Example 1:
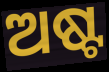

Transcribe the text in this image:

ଅଷ୍ଟ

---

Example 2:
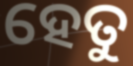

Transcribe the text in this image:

ହେତୁ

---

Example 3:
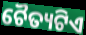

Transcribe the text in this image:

ଚୈତ୍ୟଟିଏ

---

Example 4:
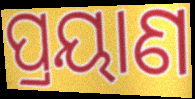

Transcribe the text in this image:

ପ୍ରୟାଣ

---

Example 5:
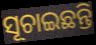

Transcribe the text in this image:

ସୂଚାଇଛନ୍ତି